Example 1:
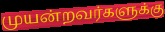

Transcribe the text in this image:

முயன்றவர்களுக்கு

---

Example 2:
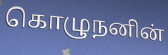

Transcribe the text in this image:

கொழுநனின்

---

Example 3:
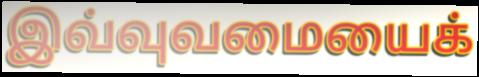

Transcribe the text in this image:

இவ்வுவமையைக்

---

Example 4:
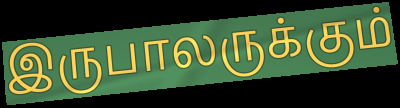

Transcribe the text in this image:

இருபாலருக்கும்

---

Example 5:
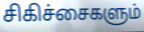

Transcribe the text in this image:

சிகிச்சைகளும்